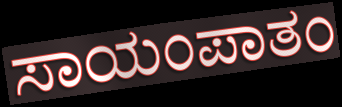
ಸಾಯಂಪಾತಂ